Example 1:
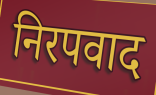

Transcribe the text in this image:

निरपवाद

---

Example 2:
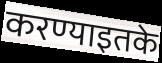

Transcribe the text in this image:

करण्याइतके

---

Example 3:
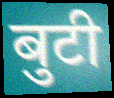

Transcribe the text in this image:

बुटी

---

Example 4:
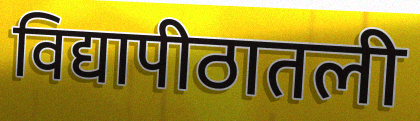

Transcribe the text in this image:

विद्यापीठातली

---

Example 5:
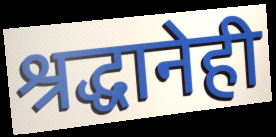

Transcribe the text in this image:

श्रद्धानेही